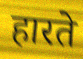
हारते